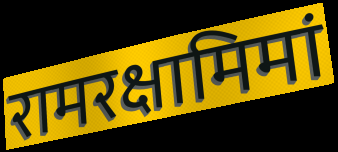
रामरक्षामिमां